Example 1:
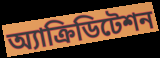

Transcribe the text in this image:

অ্যাক্রিডিটেশন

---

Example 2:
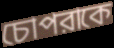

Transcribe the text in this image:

চোপরাকে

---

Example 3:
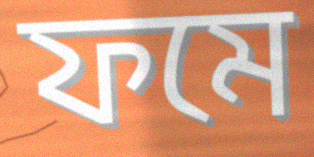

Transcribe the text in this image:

ফমে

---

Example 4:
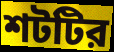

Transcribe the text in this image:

শটটির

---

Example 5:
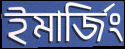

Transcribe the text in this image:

ইমার্জিং